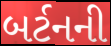
બર્ટનની